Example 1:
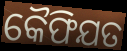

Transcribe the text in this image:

କୈଫିଯତ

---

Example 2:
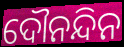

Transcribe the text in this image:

ଦୌନନ୍ଦିନ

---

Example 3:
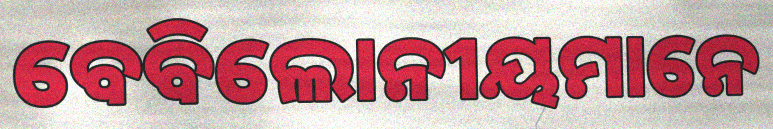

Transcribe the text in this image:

ବେବିଲୋନୀୟମାନେ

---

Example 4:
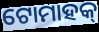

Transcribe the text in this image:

ଟୋମାହକ୍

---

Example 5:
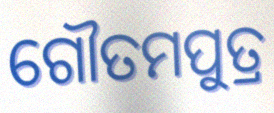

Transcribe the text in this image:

ଗୌତମପୁତ୍ର